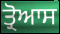
ਤ੍ਰੋਆਸ